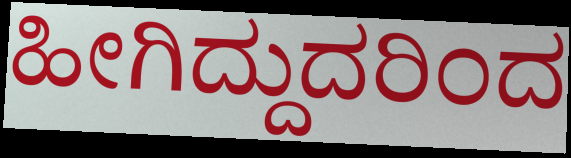
ಹೀಗಿದ್ದುದರಿಂದ